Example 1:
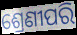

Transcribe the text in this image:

ଶ୍ରେଣୀପରି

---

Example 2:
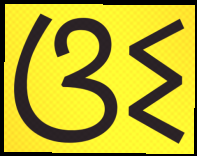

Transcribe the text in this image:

ଓଽ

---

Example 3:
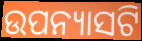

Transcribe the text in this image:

ଉପନ୍ୟାସଟି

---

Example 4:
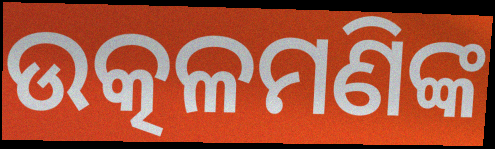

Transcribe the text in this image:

ଉତ୍କଳମଣିଙ୍କ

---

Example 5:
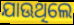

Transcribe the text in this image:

ଯାଊଥିଲେ